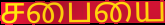
சபையை